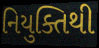
નિયુક્તિથી